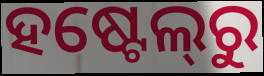
ହଷ୍ଟେଲ୍‍ରୁ